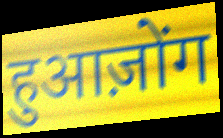
हुआज़ोंग